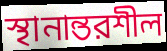
স্থানান্তরশীল